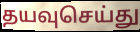
தயவுசெய்து